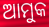
ଆମୁକ